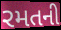
રમતની